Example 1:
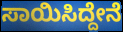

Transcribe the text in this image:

ಸಾಯಿಸಿದ್ದೇನೆ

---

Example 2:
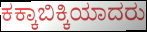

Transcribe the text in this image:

ಕಕ್ಕಾಬಿಕ್ಕಿಯಾದರು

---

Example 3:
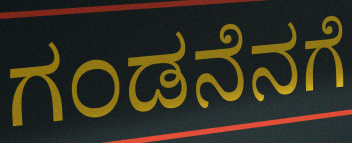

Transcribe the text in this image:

ಗಂಡನೆನಗೆ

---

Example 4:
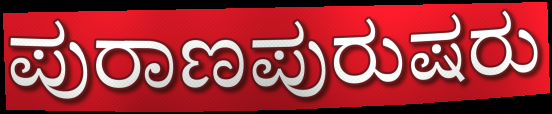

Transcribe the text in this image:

ಪುರಾಣಪುರುಷರು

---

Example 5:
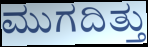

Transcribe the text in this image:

ಮುಗದಿತ್ತು